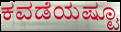
ಕವಡೆಯಷ್ಟೂ